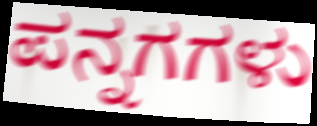
ಪನ್ನಗಗಳು